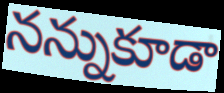
నన్నుకూడా